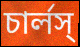
চার্লস্